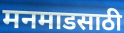
मनमाडसाठी